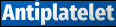
Antiplatelet